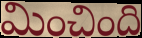
మించింది